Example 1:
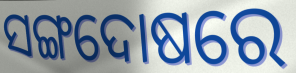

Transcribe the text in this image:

ସଙ୍ଗଦୋଷରେ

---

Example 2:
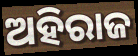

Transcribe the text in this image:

ଅହିରାଜ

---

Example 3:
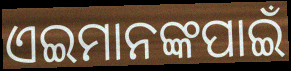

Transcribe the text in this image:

ଏଇମାନଙ୍କପାଇଁ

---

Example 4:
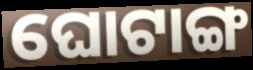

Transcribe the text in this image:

ଘୋଟାଙ୍ଗ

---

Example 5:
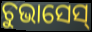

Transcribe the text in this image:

ଚୁଭାସେସ୍